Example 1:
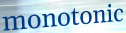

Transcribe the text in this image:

monotonic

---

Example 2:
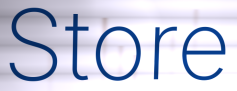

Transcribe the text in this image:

Store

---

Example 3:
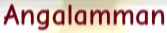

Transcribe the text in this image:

Angalamman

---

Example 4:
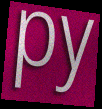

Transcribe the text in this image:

py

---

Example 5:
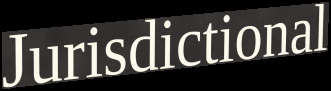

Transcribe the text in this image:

Jurisdictional